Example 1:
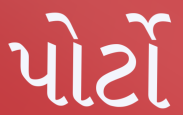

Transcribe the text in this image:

પોર્ટો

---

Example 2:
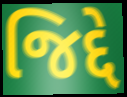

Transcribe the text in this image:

જિદ્દે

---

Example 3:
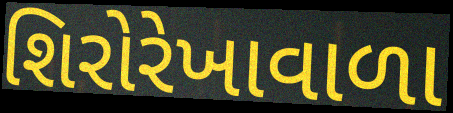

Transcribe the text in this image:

શિરોરેખાવાળા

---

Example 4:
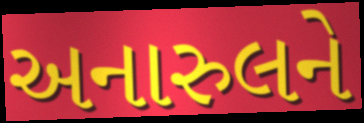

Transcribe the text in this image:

અનારુલને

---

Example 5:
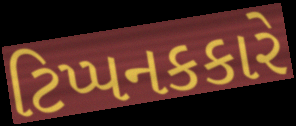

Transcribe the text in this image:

ટિપ્પનકકારે